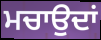
ਮਚਾਉਦਾਂ